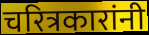
चरित्रकारांनी